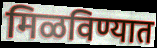
मिळविण्यात